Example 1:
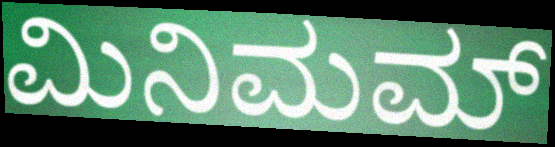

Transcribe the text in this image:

ಮಿನಿಮಮ್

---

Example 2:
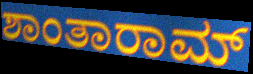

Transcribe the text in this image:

ಶಾಂತಾರಾಮ್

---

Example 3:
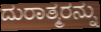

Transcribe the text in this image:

ದುರಾತ್ಮರನ್ನು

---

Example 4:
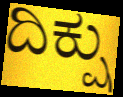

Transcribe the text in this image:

ದಿಕ್ಷು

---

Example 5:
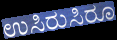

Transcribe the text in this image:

ಉಸಿರುಸಿರೂ